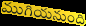
ముగియనుంది